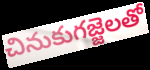
చినుకుగజ్జెలతో